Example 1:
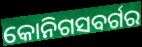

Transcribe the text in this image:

କୋନିଗସବର୍ଗର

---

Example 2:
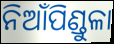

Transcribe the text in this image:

ନିଆଁପିଣ୍ଡୁଳା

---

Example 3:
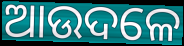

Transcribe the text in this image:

ଆଉଦଳେ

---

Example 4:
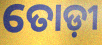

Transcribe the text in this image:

ତୋଡ଼ୀ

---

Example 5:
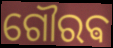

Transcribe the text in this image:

ଗୌରଵ